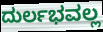
ದುರ್ಲಭವಲ್ಲ